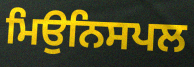
ਮਿਉਨਿਸਪਲ